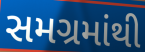
સમગ્રમાંથી